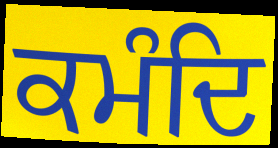
ਕਮੰਦਿ